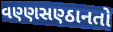
વણ્ણસણ્ઠાનતો